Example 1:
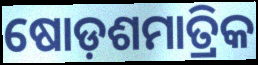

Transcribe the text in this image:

ଷୋଡ଼ଶମାତ୍ରିକ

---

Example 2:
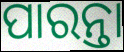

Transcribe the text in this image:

ପାରନ୍ତା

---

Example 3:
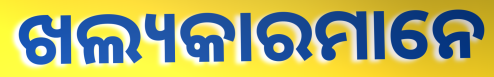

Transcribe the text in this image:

ଖଲ୍ୟକାରମାନେ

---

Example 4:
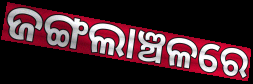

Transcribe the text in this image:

ଜଙ୍ଗଲାଞ୍ଚଳରେ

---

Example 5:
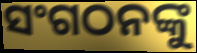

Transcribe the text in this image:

ସଂଗଠନଙ୍କୁ